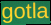
gotla